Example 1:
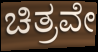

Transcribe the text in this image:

ಚಿತ್ರವೇ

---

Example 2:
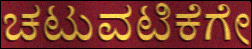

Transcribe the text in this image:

ಚಟುವಟಿಕೆಗೇ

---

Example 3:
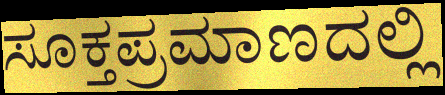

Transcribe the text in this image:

ಸೂಕ್ತಪ್ರಮಾಣದಲ್ಲಿ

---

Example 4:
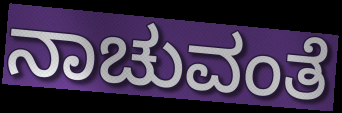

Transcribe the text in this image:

ನಾಚುವಂತೆ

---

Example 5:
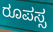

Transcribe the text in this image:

ರೂಪಸ್ಸ